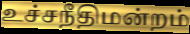
உச்சநீதிமன்றம்